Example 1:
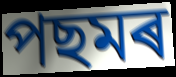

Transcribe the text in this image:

পছমৰ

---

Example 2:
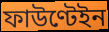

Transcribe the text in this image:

ফাউণ্টেইন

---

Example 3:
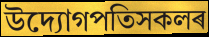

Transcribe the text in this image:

উদ্যোগপতিসকলৰ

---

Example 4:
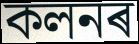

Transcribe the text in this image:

কলনৰ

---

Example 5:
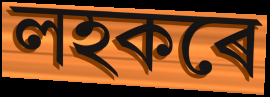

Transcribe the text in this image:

লহকৰে